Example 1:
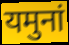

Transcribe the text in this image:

यमुनां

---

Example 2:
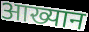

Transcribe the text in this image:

आख्यान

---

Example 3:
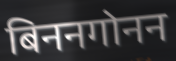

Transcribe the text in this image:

बिननगोनन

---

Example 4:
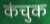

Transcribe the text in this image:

कंचुक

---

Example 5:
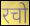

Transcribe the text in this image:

रचो